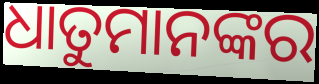
ଧାତୁମାନଙ୍କର